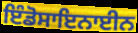
ਇੰਡੋਸਾਇਨਾਈਨ